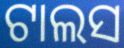
ଟାଲସ